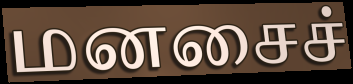
மனசைச்